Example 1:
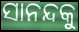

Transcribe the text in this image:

ସାନନ୍ଦକୁ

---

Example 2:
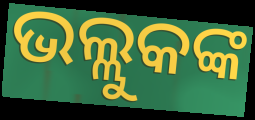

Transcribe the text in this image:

ଭଲ୍ଲୁକଙ୍କ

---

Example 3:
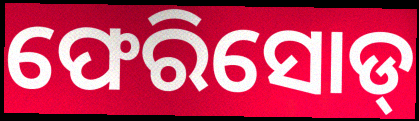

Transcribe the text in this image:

ଫେରିସୋଡ୍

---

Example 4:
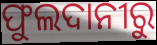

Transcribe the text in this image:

ଫୁଲଦାନୀରୁ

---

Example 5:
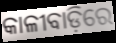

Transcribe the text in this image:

କାଳୀବାଡ଼ିରେ